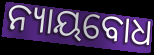
ନ୍ୟାୟବୋଧ